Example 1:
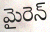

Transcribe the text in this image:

మైరెన్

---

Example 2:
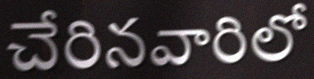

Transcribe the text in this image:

చేరినవారిలో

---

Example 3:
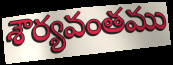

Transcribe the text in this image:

శౌర్యవంతము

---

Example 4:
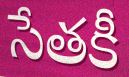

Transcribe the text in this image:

సేతకీ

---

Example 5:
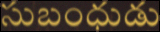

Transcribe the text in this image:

సుబంధుడు